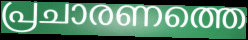
പ്രചാരണത്തെ